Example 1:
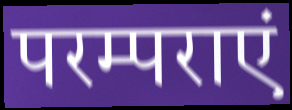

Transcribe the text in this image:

परम्पराएं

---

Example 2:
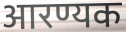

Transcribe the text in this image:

आरण्यक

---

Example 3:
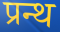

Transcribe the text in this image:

प्रन्थ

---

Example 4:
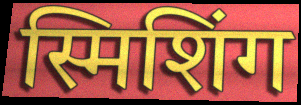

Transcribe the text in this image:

स्मिशिंग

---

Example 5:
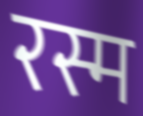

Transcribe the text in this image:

रस्म